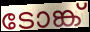
ടോങ്ക്